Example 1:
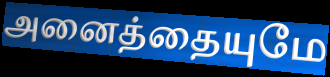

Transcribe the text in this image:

அனைத்தையுமே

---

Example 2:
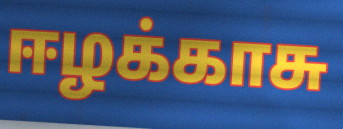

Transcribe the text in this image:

ஈழக்காசு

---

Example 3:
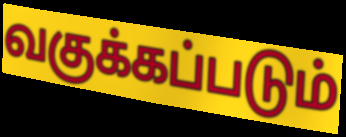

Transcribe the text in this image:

வகுக்கப்படும்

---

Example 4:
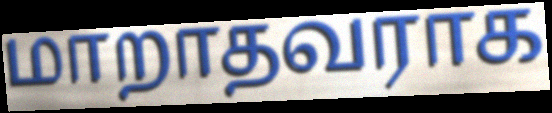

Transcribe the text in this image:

மாறாதவராக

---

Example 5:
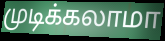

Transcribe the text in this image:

முடிக்கலாமா